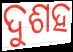
ଦୁଶହ